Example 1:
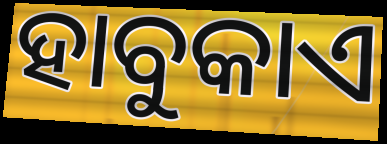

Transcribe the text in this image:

ହାବୁକାଏ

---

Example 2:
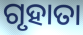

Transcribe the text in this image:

ଗୃହାତା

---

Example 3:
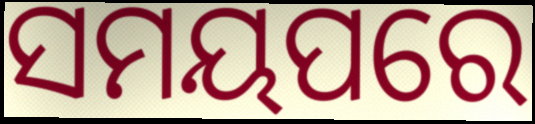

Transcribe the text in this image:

ସମୟପରେ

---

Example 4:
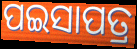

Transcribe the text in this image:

ପଇସାପତ୍ର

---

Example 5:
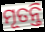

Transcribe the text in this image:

ମୂତନ୍ତି